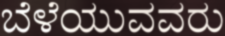
ಬೆಳೆಯುವವರು